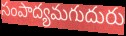
సంపాద్యమగుదురు